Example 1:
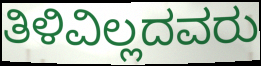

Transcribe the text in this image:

ತಿಳಿವಿಲ್ಲದವರು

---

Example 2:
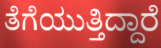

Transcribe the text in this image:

ತೆಗೆಯುತ್ತಿದ್ದಾರೆ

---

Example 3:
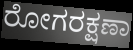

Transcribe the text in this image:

ರೋಗರಕ್ಷಣಾ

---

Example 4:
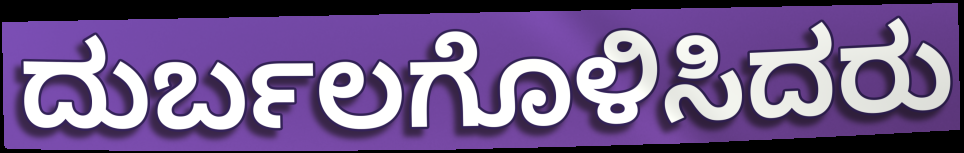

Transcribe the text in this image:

ದುರ್ಬಲಗೊಳಿಸಿದರು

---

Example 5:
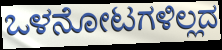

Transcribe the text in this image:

ಒಳನೋಟಗಳಿಲ್ಲದ